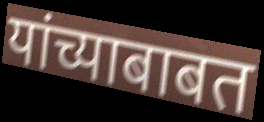
यांच्याबाबत